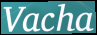
Vacha